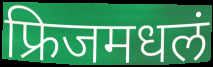
फ्रिजमधलं